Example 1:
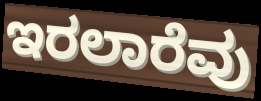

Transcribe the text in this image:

ಇರಲಾರೆವು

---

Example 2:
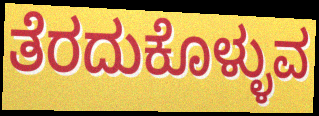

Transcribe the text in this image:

ತೆರದುಕೊಳ್ಳುವ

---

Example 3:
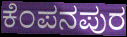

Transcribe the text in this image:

ಕೆಂಪನಪುರ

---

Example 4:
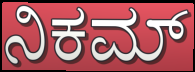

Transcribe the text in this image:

ನಿಕಮ್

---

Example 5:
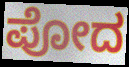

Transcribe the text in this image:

ಪೋದ